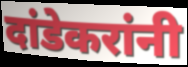
दांडेकरांनी